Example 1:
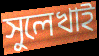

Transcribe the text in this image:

সুলেখাই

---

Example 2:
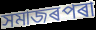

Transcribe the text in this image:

সমাজৰপৰা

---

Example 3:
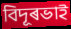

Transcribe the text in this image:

বিদূৰভাই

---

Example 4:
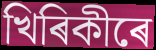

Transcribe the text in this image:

খিৰিকীৰে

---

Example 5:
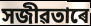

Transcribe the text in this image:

সজীৱতাৰে